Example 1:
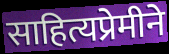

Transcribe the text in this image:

साहित्यप्रेमीने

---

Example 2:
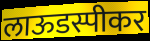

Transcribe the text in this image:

लाऊडस्पीकर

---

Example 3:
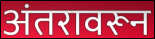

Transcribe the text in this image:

अंतरावरून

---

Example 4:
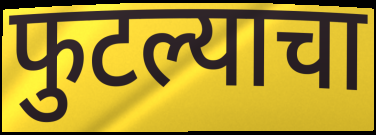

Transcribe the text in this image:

फुटल्याचा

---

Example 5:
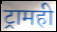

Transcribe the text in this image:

ट्रामही